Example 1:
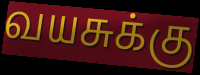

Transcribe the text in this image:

வயசுக்கு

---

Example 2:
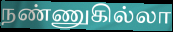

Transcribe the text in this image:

நண்ணுகில்லா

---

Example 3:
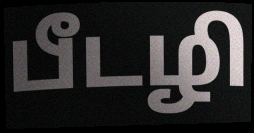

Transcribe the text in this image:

பீடழி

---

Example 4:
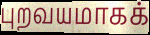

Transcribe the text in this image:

புறவயமாகக்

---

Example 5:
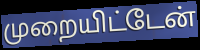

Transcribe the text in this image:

முறையிட்டேன்